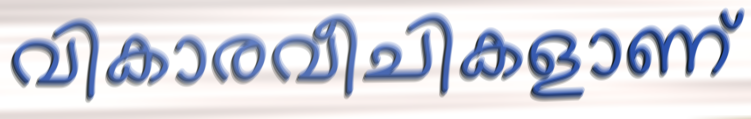
വികാരവീചികളാണ്